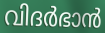
വിദർഭാൻ